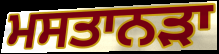
ਮਸਤਾਨੜਾ